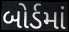
બોર્ડમાં